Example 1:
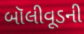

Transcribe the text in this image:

બૉલીવૂડની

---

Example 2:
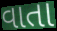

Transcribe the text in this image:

વાતા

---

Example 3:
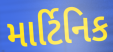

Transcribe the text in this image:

માર્ટિનિક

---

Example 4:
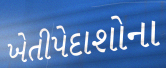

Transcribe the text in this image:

ખેતીપેદાશોના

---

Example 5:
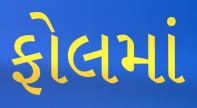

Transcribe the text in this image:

ફોલમાં